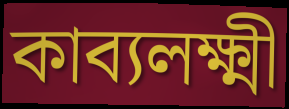
কাব্যলক্ষ্মী